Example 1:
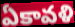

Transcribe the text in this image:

ఏకావళి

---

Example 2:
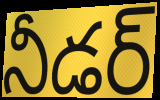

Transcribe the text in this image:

నీడర్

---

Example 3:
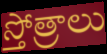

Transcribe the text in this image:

స్తోత్రాలు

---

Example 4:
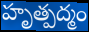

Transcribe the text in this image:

హృత్పద్మం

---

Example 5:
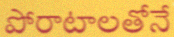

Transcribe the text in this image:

పోరాటాలతోనే